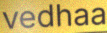
vedhaa